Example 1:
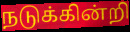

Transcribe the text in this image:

நடுக்கின்றி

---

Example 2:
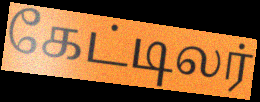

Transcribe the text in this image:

கேட்டிலர்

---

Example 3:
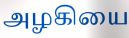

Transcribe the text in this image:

அழகியை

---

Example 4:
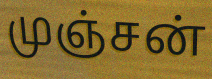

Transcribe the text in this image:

முஞ்சன்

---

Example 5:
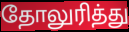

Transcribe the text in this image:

தோலுரித்து